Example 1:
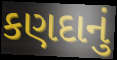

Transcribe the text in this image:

કણદાનું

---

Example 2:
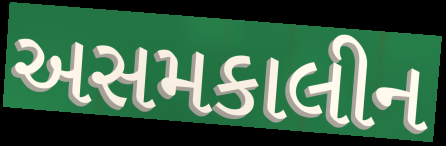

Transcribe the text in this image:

અસમકાલીન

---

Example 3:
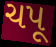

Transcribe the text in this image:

ચપૂ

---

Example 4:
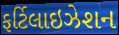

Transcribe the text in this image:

ફર્ટિલાઇઝેશન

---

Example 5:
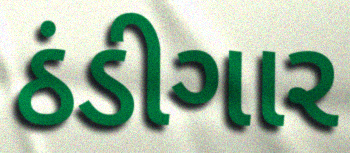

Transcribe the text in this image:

ઠંડીગાર